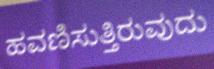
ಹವಣಿಸುತ್ತಿರುವುದು